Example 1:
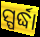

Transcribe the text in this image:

ସ୍ପର୍ଦ୍ଧା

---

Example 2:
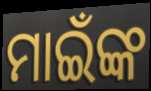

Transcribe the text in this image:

ମାଇଁଙ୍କ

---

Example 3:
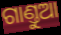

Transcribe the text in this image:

ଗାଣ୍ତୁଆ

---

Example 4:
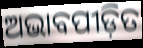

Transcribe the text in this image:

ଅଭାବପୀଡ଼ିତ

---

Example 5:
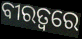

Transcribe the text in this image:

ବୀରତ୍ୱରେ